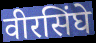
वीरसिंघे